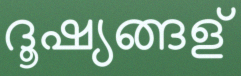
ദൂഷ്യങ്ങള്